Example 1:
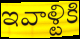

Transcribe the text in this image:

ఇవాళ్టికి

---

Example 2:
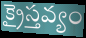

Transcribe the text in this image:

క్రైస్తవ్యం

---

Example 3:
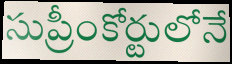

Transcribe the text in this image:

సుప్రీంకోర్టులోనే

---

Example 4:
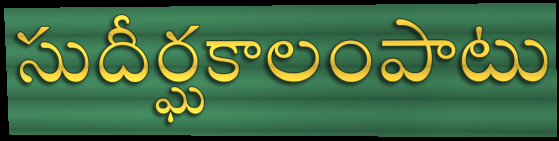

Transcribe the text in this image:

సుదీర్ఘకాలంపాటు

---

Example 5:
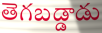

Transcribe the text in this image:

తెగబడ్డాడు